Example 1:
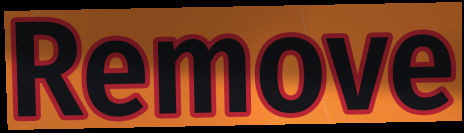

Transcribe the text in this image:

Remove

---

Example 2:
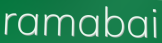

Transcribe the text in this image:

ramabai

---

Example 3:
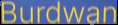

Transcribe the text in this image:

Burdwan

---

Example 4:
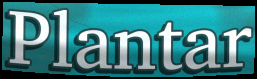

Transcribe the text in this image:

Plantar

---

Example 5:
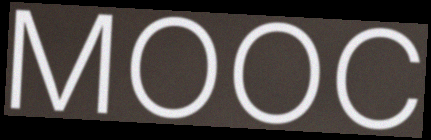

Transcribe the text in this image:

MOOC